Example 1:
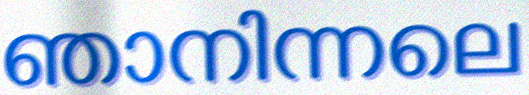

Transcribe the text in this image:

ഞാനിന്നലെ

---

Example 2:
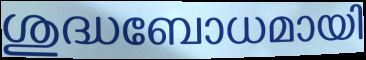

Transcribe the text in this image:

ശുദ്ധബോധമായി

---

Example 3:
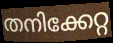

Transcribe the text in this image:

തനിക്കേറ്റ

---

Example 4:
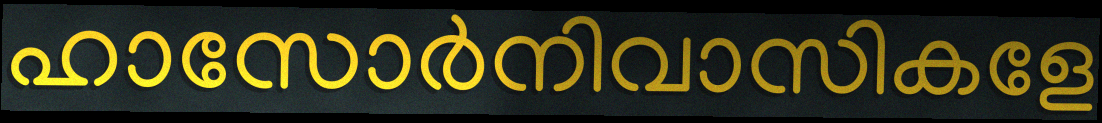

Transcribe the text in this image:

ഹാസോർനിവാസികളേ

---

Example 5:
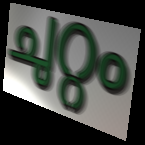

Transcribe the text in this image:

ചുറ്റം